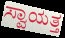
ಸ್ವಾಯತ್ತ